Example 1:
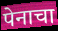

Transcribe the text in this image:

पेनाचा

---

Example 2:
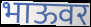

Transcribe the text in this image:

भाऊवर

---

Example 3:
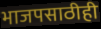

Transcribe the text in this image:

भाजपसाठीही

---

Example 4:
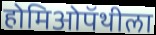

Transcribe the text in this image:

होमिओपॅथीला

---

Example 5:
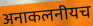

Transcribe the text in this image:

अनाकलनीयच